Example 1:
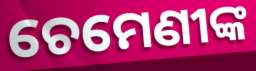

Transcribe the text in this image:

ଚେମେଣୀଙ୍କ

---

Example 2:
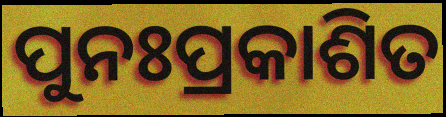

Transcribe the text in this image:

ପୁନଃପ୍ରକାଶିତ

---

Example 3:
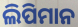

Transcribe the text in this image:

ଲିପିମାନ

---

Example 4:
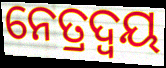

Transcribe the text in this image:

ନେତ୍ରଦ୍ୱୟ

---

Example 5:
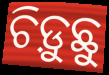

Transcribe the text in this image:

ଚିଡ଼ୁଛୁ